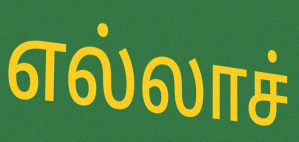
எல்லாச்